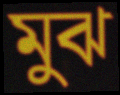
মুঝ